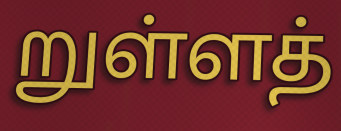
றுள்ளத்